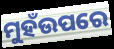
ମୁହଁଉପରେ